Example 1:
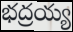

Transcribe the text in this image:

భద్రయ్య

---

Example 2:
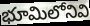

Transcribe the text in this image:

భూమిలోనివి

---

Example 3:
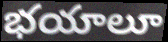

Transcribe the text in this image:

భయాలూ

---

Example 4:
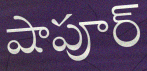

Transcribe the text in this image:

షాపూర్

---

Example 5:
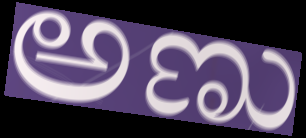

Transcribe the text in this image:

అణు